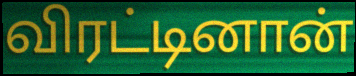
விரட்டினான்